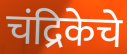
चंद्रिकेचे